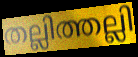
തല്ലിത്തല്ലി